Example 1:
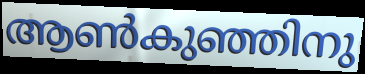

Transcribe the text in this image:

ആൺകുഞ്ഞിനു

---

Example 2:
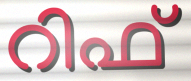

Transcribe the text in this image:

റിഫ്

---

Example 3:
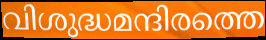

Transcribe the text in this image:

വിശുദ്ധമന്ദിരത്തെ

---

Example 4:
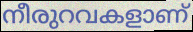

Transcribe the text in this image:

നീരുറവകളാണ്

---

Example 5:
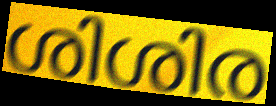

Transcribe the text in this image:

ശിശിര